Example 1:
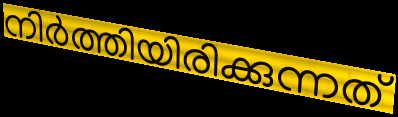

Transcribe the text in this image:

നിർത്തിയിരിക്കുന്നത്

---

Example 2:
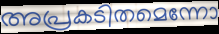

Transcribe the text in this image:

അപ്രകടിതമെന്നോ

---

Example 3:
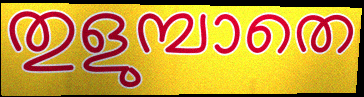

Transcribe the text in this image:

തുളുമ്പാതെ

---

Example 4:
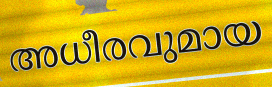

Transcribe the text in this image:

അധീരവുമായ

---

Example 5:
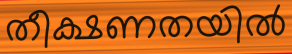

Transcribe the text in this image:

തീക്ഷണതയിൽ